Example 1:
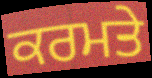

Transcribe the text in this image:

ਕਰਮਤੇ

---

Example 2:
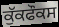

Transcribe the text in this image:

ਕੁੱਕਫੌਕਸ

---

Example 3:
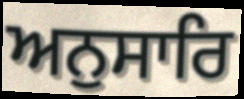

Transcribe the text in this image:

ਅਨੁਸਾਰਿ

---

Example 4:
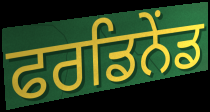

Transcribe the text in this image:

ਫਰਡਿਨੇਂਡ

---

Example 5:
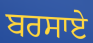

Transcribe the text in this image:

ਬਰਸਾਏ